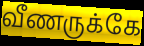
வீணருக்கே